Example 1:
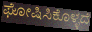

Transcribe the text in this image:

ಘೋಷಿಸಿಕೊಳ್ಳದೆ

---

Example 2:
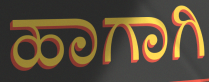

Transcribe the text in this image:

ಹಾಗಾಗಿ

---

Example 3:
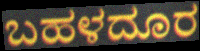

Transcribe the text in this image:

ಬಹಳದೂರ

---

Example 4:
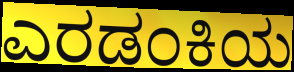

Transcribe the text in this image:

ಎರಡಂಕಿಯ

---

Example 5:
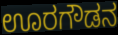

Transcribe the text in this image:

ಊರಗೌಡನ